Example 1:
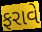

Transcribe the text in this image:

ફરાવે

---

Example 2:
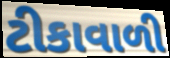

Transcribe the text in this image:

ટીકાવાળી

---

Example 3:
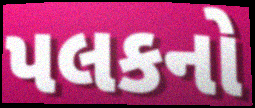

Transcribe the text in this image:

પલકનો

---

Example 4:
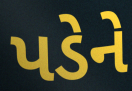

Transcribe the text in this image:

પડેને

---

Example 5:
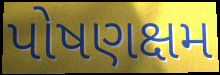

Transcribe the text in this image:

પોષણક્ષમ